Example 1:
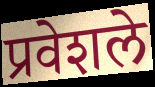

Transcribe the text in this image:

प्रवेशले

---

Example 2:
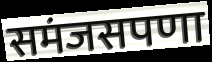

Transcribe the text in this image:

समंजसपणा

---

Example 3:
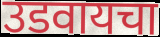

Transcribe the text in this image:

उडवायचा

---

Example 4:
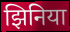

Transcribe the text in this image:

झिनिया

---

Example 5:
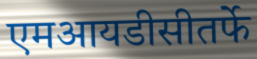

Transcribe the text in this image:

एमआयडीसीतर्फे